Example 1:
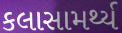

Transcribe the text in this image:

કલાસામર્થ્ય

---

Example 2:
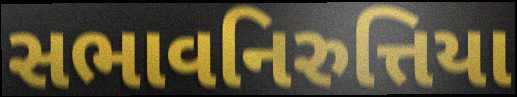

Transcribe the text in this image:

સભાવનિરુત્તિયા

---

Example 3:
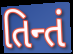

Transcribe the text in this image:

તિન્તં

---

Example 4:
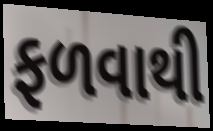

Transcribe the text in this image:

ફળવાથી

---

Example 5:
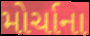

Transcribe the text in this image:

મોર્ચાના